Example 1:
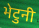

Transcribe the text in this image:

भेटुनी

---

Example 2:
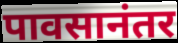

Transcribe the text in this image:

पावसानंतर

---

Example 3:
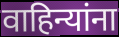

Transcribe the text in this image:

वाहिन्यांना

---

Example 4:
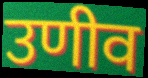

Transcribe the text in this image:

उणीव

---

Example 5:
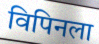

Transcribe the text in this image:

विपिनला